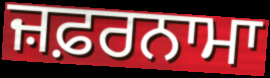
ਜ਼ਫ਼ਰਨਾਮਾ